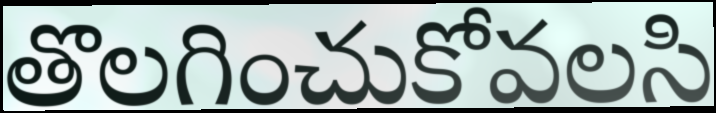
తొలగించుకోవలసి